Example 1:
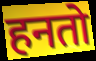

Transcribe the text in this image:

हनतो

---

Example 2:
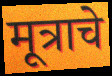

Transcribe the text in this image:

मूत्राचे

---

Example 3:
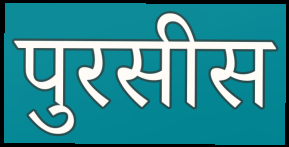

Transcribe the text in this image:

पुरसीस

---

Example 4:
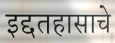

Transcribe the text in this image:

इद्दतहासाचे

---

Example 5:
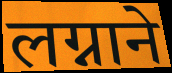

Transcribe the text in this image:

लग्नाने